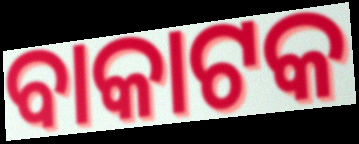
ବାକାଟକ